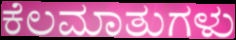
ಕೆಲಮಾತುಗಳು